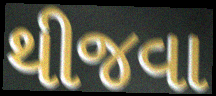
થીજવા